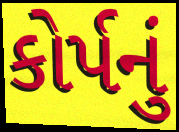
કોર્પનું